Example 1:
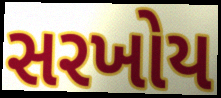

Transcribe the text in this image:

સરખોય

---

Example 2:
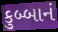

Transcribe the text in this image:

કુબ્બાનં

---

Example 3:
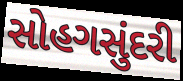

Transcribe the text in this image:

સોહગસુંદરી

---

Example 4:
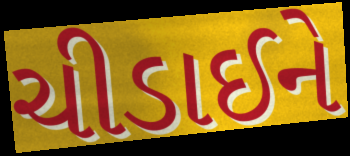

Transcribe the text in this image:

ચીડાઈને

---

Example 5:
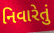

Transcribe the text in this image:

નિવારેતું